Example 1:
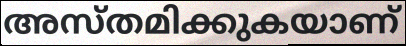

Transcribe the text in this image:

അസ്തമിക്കുകയാണ്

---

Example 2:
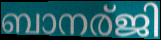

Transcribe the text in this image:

ബാനര്ജി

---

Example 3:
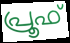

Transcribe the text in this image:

പ്രൂഫ്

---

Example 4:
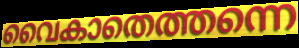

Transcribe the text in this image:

വൈകാതെത്തന്നെ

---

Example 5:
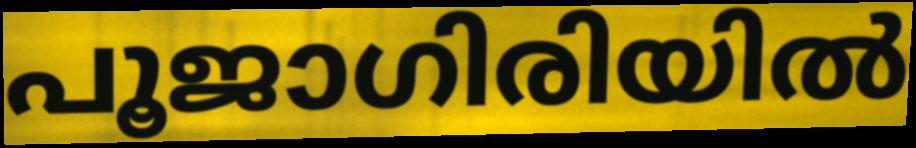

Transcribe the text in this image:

പൂജാഗിരിയിൽ